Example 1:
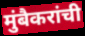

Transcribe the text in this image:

मुंबैकरांची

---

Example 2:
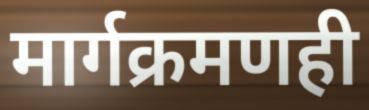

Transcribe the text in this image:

मार्गक्रमणही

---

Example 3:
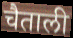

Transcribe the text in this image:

चैताली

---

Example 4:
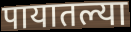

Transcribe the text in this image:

पायातल्या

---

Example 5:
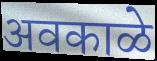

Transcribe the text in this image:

अवकाळे